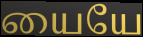
யையே